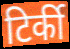
टिर्की